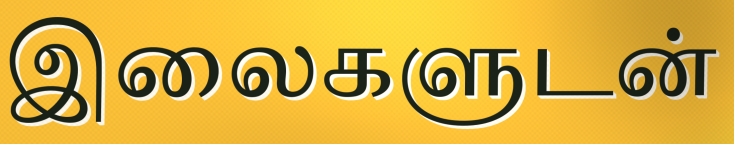
இலைகளுடன்